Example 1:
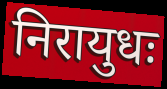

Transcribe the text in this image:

निरायुधः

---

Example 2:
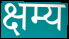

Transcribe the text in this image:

क्षम्य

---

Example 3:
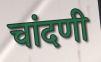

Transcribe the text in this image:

चांदणी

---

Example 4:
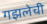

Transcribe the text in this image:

गझलेची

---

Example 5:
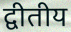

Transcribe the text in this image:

द्वीतीय